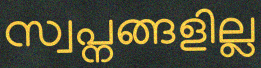
സ്വപ്നങ്ങളില്ല